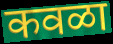
कवळा